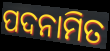
ପଦନାମିତ